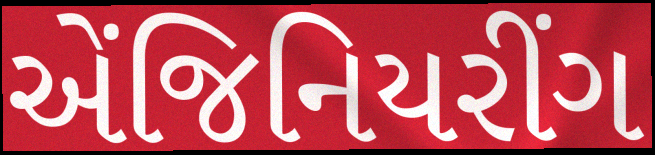
એંજિનિયરીંગ